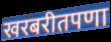
खरबरीतपणा